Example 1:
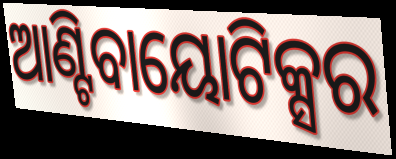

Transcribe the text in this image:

ଆଣ୍ଟିବାୟୋଟିକ୍ସର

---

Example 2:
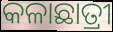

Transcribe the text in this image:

କଳାଛାତ୍ରୀ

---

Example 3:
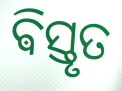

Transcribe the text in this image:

ଵିସ୍ତୃତ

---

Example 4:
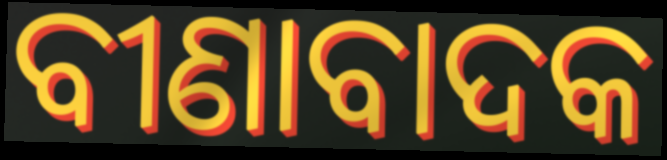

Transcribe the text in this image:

ବୀଣାବାଦକ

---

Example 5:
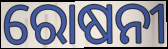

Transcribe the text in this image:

ରୋଷନୀ